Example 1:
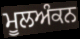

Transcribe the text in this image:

ਮੂਲਅੰਕਨ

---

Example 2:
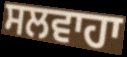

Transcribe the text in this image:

ਸਲਵਾਹਾ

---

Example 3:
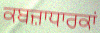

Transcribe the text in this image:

ਕਬਜ਼ਾਧਾਰਕਾਂ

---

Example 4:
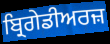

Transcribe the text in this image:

ਬ੍ਰਿਗੇਡੀਅਰਜ਼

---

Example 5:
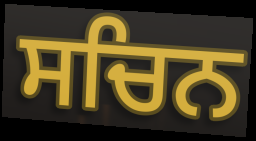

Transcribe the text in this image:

ਸਚਿਨ